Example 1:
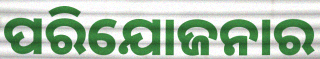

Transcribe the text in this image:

ପରିଯୋଜନାର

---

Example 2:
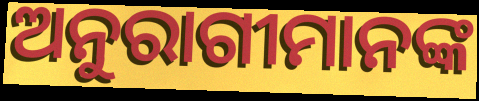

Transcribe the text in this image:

ଅନୁରାଗୀମାନଙ୍କ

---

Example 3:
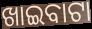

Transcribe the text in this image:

ଖାଇବାଟା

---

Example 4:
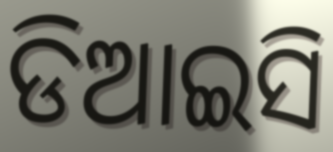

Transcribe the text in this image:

ଡିଆଇସି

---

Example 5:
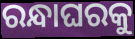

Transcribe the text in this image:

ରନ୍ଧାଘରକୁ